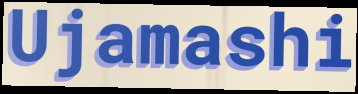
Ujamashi